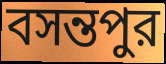
বসন্তপুর